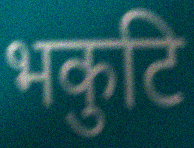
भकुटि